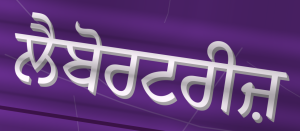
ਲੈਬੋਰਟਰੀਜ਼